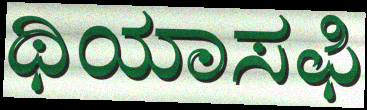
ಥಿಯಾಸಫಿ